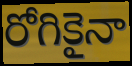
రోగికైనా